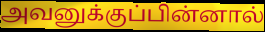
அவனுக்குப்பின்னால்